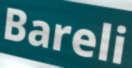
Bareli